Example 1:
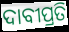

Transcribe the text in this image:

ଦାବୀପ୍ରତି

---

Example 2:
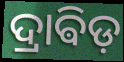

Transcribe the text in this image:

ଦ୍ରାଵିଡ଼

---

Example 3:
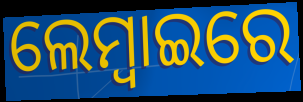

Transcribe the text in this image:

ଲେମ୍ବାଇରେ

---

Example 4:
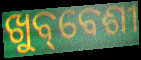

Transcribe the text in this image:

ଖୁବ୍‌ବେଶୀ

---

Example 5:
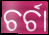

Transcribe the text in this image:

ଚର୍ଚା